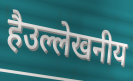
हैउल्लेखनीय